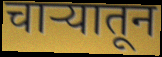
चाऱ्यातून